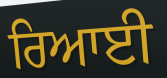
ਰਿਆਈ